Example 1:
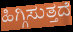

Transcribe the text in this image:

ಹಿಗ್ಗಿಸುತ್ತದೆ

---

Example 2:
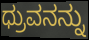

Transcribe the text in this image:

ಧ್ರುವನನ್ನು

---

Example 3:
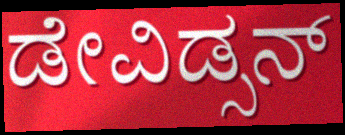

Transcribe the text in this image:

ಡೇವಿಡ್ಸನ್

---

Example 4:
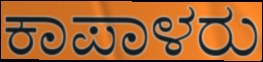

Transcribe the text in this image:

ಕಾಪಾಳರು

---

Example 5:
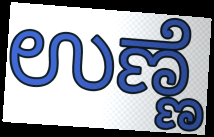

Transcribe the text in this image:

ಉಣ್ಣೆ